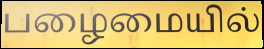
பழைமையில்